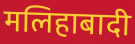
मलिहाबादी